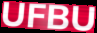
UFBU